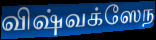
விஷ்வக்ஸேந